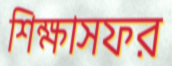
শিক্ষাসফর